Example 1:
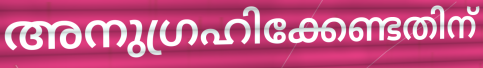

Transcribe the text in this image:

അനുഗ്രഹിക്കേണ്ടതിന്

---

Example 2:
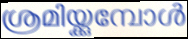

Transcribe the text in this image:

ശ്രമിയ്ക്കുമ്പോൾ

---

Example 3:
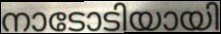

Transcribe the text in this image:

നാടോടിയായി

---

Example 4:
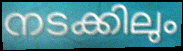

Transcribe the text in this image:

നടക്കിലും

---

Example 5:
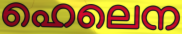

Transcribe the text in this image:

ഹെലെന